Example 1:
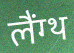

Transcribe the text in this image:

लैंग्थ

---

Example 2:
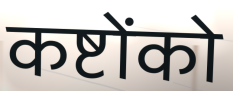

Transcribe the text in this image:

कष्टोंको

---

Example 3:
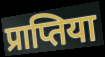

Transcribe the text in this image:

प्राप्तिया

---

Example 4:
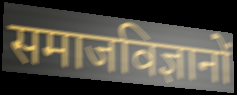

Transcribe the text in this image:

समाजविज्ञानों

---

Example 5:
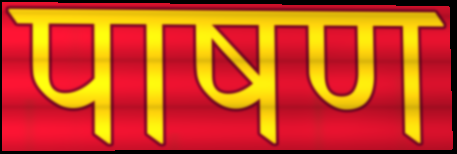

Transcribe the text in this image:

पाषण